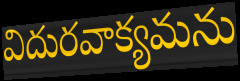
విదురవాక్యమను